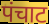
पंचाट